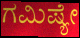
ಗಮಿಷ್ಯೇ